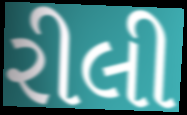
રીલી